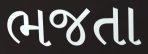
ભજતા